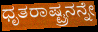
ಧೃತರಾಷ್ಟ್ರನನ್ನೇ